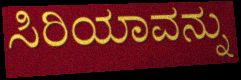
ಸಿರಿಯಾವನ್ನು